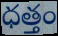
ధత్తం